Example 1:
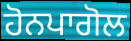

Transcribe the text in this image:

ਹੋਨਪਾਗੋਲ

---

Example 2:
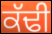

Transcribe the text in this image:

ਕੱਢੀ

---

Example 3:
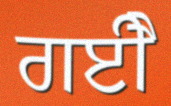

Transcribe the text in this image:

ਗਈੈ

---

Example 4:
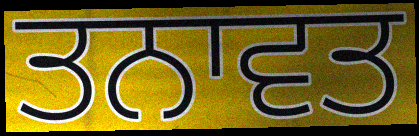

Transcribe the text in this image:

ਤਨਾਵਤ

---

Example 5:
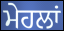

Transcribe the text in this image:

ਮੇਹਲਾਂ